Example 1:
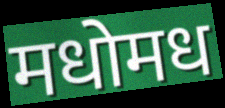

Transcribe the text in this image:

मधोमध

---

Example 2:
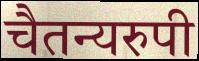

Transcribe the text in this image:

चैतन्यरुपी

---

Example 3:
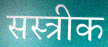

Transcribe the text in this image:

सस्त्रीक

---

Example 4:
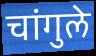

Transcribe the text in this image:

चांगुले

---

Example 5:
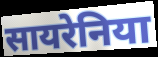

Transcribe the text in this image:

सायरेनिया